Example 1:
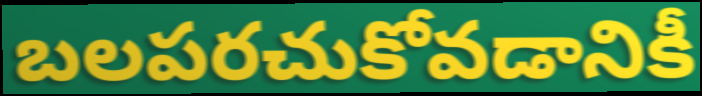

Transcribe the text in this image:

బలపరచుకోవడానికీ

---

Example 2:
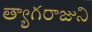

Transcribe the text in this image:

త్యాగరాజుని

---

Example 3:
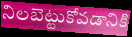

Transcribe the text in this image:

నిలబెట్టుకోవడానికి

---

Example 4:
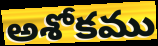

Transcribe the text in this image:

అశోకము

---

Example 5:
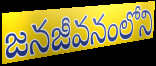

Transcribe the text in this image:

జనజీవనంలోని